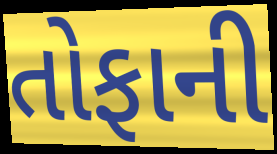
તોફાની